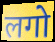
लगो